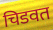
चिडवत